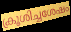
ക്രൂശിച്ചശേഷം